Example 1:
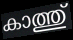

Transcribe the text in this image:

കാത്തു്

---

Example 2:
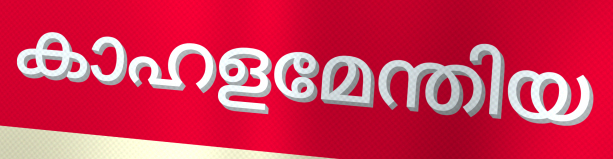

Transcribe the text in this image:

കാഹളമേന്തിയ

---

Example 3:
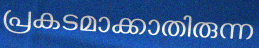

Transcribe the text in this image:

പ്രകടമാക്കാതിരുന്ന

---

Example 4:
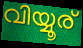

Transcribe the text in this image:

വിയ്യൂര്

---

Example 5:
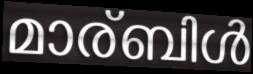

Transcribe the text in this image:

മാര്ബിൾ